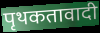
पृथकतावादी